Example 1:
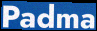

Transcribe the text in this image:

Padma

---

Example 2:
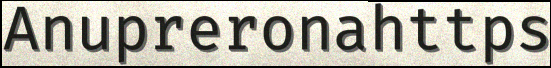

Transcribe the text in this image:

Anupreronahttps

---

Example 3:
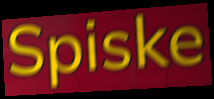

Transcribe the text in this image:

Spiske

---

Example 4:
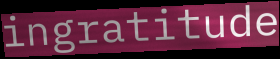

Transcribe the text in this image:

ingratitude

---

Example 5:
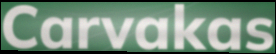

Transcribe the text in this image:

Carvakas